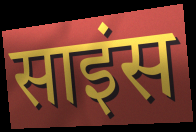
साइंस